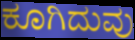
ಕೂಗಿದುವು